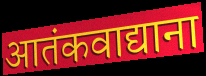
आतंकवाद्याना